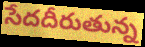
సేదదీరుతున్న